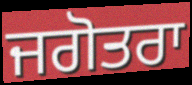
ਜਗੋਤਰਾ